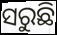
ସରୁଛି